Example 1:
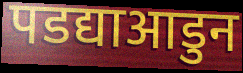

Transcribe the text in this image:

पडद्याआडुन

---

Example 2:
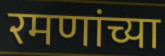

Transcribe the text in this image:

रमणांच्या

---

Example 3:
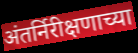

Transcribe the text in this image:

अंतर्निरीक्षणाच्या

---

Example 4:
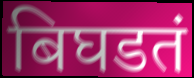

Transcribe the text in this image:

बिघडतं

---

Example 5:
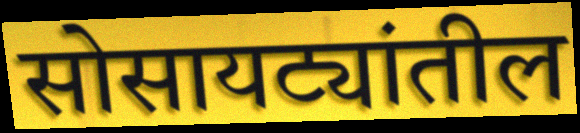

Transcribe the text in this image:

सोसायट्यांतील